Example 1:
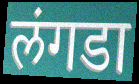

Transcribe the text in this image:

लंगडा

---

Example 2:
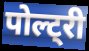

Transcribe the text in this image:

पोल्ट्री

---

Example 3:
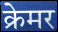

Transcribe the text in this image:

क्रेमर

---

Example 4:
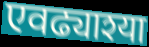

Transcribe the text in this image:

एवढ्याश्या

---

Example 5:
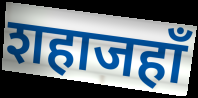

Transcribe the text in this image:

शहाजहाँ